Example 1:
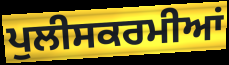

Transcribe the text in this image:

ਪੁਲੀਸਕਰਮੀਆਂ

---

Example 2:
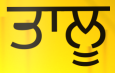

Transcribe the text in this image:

ਤਾਲੂ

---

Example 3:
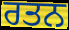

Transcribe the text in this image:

ਰਤਨ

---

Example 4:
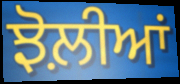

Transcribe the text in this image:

ਝੋਲ਼ੀਆਂ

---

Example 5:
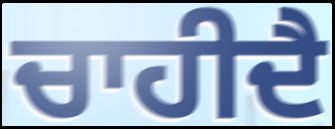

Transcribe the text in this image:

ਚਾਹੀਦੈ